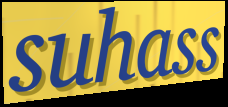
suhass